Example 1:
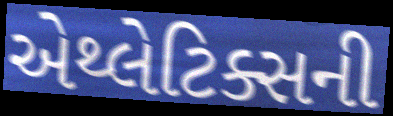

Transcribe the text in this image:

એથ્લેટિક્સની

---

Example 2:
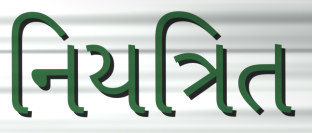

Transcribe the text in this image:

નિયત્રિત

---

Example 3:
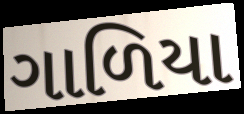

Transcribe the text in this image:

ગાળિયા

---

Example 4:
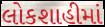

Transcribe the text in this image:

લોકશાહીમાં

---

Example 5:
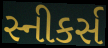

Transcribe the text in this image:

સ્નીકર્સ